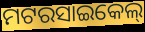
ମଟରସାଇକେଲ୍